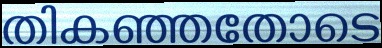
തികഞ്ഞതോടെ